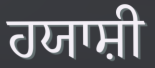
ਹਯਾਸ਼ੀ